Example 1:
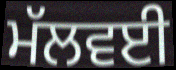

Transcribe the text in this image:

ਮੱਲਵਈ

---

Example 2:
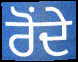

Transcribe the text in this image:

ਰੋਂਦੇ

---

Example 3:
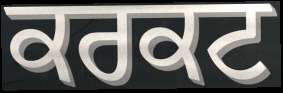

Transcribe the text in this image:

ਕਰਕਟ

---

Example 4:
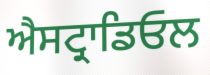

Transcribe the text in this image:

ਐਸਟ੍ਰਾਡਿਓਲ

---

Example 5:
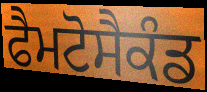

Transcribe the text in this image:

ਫੈਮਟੋਸੈਕੰਡ